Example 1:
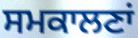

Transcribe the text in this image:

ਸਮਕਾਲਣਾਂ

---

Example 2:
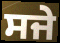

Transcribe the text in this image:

ਸਜੇ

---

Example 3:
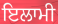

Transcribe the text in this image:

ਇਲਾਮੀ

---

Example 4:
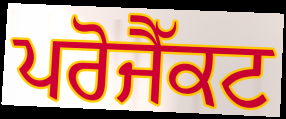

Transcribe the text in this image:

ਪਰੋਜੈੱਕਟ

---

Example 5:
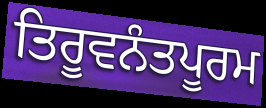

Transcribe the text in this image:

ਤਿਰੂਵਨੰਤਪੂਰਮ